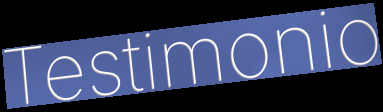
Testimonio